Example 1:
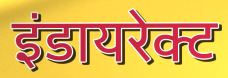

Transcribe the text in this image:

इंडायरेक्ट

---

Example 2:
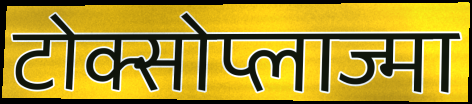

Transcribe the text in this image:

टोक्सोप्लाज्मा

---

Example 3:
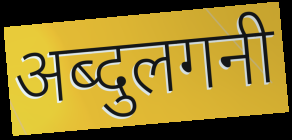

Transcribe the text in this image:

अब्दुलगनी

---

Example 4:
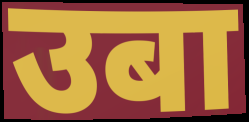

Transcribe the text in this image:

उबा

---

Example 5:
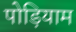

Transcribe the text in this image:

पोड़ियाम